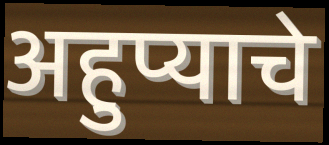
अहुप्याचे